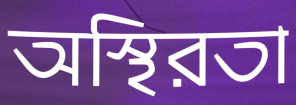
অস্থিরতা